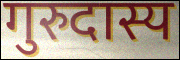
गुरुदास्य